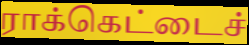
ராக்கெட்டைச்